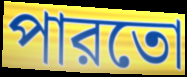
পারতো